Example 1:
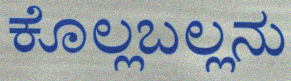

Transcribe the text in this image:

ಕೊಲ್ಲಬಲ್ಲನು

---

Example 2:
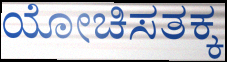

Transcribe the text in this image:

ಯೋಚಿಸತಕ್ಕ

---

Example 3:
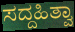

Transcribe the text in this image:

ಸದ್ದಹಿತ್ವಾ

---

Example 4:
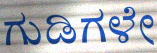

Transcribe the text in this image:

ಗುಡಿಗಳೇ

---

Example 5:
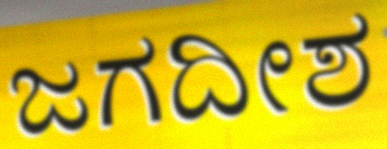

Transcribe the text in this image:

ಜಗದೀಶ